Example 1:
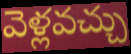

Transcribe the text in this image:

వెళ్లవచ్చు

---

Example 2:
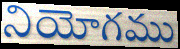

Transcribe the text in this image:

నియోగము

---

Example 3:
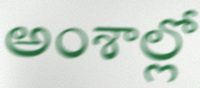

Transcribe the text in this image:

అంశాల్లో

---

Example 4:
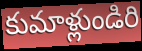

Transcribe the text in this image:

కుమాళ్లుండిరి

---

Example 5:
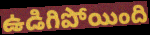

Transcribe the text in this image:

ఉడిగిపోయింది